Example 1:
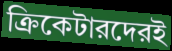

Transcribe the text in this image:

ক্রিকেটারদেরই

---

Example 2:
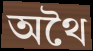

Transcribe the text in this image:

অথৈ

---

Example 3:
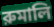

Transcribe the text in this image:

রুমালি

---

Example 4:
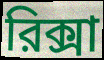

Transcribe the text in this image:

রিক্সা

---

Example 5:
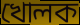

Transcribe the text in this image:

খোলক